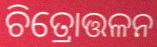
ଚିତ୍ରୋତ୍ତଳନ